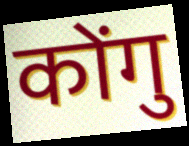
कोंगु